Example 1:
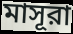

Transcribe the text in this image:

মাসূরা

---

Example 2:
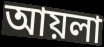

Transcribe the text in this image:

আয়লা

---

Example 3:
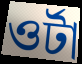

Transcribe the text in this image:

ওর্টা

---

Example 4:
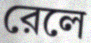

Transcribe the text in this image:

রেলে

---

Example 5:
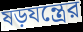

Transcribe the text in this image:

ষড়যন্ত্রের